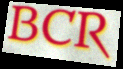
BCR